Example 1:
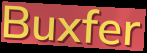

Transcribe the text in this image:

Buxfer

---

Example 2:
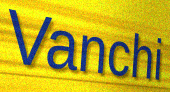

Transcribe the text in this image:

Vanchi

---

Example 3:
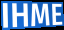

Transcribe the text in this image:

IHME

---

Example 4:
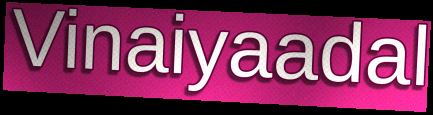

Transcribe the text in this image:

Vinaiyaadal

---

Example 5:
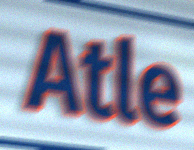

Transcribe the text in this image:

Atle